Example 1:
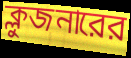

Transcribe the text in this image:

ক্লুজনারের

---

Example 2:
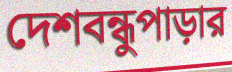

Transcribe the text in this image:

দেশবন্ধুপাড়ার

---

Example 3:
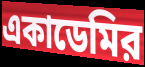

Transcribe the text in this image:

একাডেমির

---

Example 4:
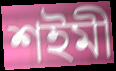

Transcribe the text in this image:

শইমী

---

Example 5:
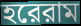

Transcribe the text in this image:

হরেরাম